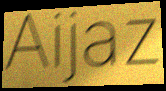
Aijaz